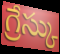
గ్రేస్కు